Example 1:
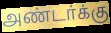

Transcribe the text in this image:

அண்டர்க்கு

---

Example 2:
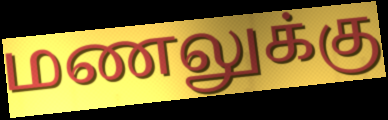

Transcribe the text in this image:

மணலுக்கு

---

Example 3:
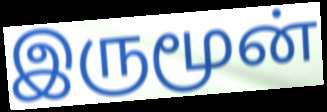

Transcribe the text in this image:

இருமூன்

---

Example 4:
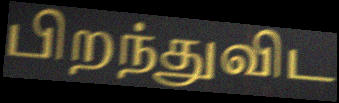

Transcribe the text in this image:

பிறந்துவிட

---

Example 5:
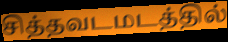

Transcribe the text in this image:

சித்தவடமடத்தில்